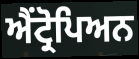
ਐਂਟ੍ਰੋਪਿਅਨ